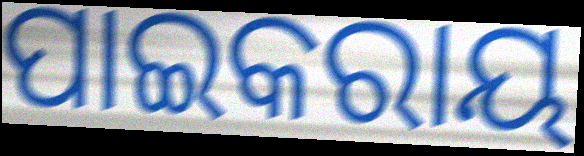
ପାଇକରାୟ